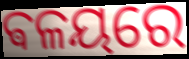
ଵଳୟରେ